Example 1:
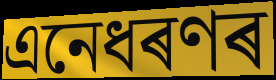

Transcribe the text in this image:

এনেধৰণৰ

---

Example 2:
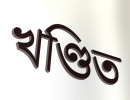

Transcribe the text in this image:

খণ্ডিত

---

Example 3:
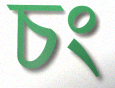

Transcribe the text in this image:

চং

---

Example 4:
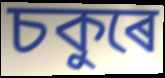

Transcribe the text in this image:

চকুৰে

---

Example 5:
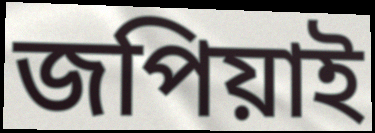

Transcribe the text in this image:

জপিয়াই